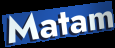
Matam